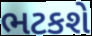
ભટકશે